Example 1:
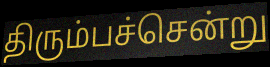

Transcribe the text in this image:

திரும்பச்சென்று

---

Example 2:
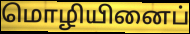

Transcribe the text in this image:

மொழியினைப்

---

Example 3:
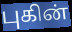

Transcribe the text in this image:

புகின்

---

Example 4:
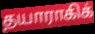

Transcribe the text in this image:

தயாராகிக்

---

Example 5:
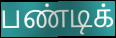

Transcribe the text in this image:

பண்டிக்